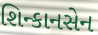
શિન્કાનસેન